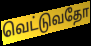
வெட்டுவதோ